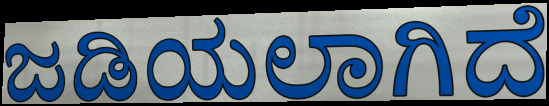
ಜಡಿಯಲಾಗಿದೆ